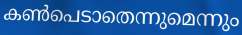
കൺപെടാതെന്നുമെന്നും